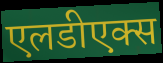
एलडीएक्स